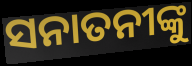
ସନାତନୀଙ୍କୁ